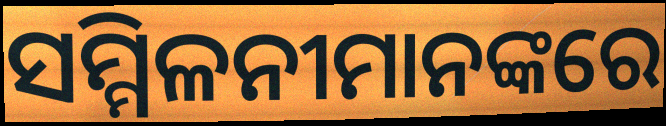
ସମ୍ମିଳନୀମାନଙ୍କରେ